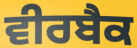
ਵੀਰਬੈਕ